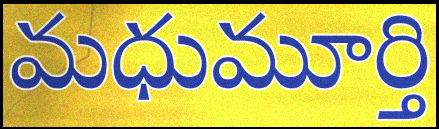
మధుమూర్తి